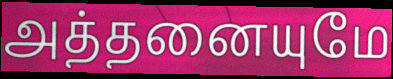
அத்தனையுமே